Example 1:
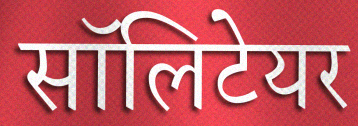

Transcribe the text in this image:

सॉलिटेयर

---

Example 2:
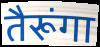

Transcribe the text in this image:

तैरूंगा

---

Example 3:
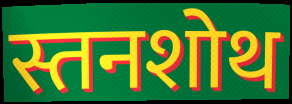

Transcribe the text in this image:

स्तनशोथ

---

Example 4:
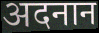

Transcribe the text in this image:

अदनान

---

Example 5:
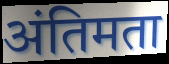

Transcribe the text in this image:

अंतिमता